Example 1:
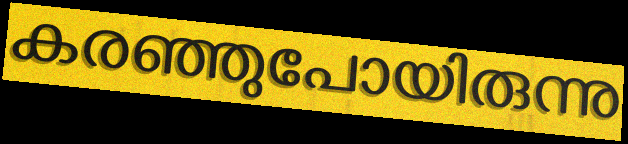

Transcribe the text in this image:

കരഞ്ഞുപോയിരുന്നു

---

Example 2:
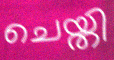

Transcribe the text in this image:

ചെയ്തി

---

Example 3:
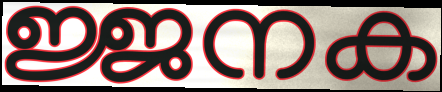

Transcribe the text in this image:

ജ്ജനക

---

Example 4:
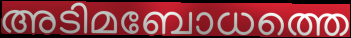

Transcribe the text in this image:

അടിമബോധത്തെ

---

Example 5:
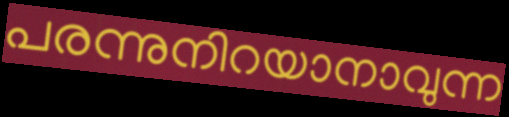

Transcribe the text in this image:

പരന്നുനിറയാനാവുന്ന